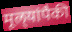
मूल्यांपैकी